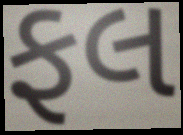
ફલ